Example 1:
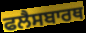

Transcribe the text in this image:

ਫਲੈਸਬਾਰਥ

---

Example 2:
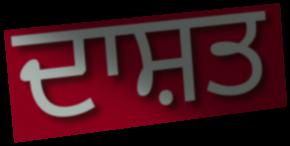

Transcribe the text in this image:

ਦਾਸ਼ਤ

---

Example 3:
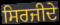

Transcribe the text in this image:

ਸਿਰਜੀਦੇ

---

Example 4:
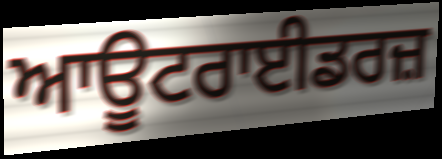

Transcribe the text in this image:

ਆਊਟਰਾਈਡਰਜ਼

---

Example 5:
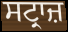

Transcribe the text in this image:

ਸਟ੍ਰਾਜ਼